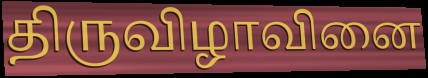
திருவிழாவினை